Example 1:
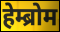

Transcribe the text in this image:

हेम्ब्रोम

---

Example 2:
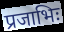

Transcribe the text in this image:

प्रजाभिः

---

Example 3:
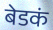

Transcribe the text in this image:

बेडकं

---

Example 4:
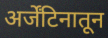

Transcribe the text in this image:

अर्जेंटिनातून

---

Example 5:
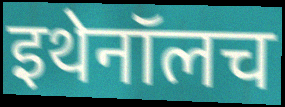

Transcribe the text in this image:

इथेनॉलच